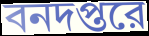
বনদপ্তরে